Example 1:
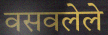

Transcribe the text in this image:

वसवलेले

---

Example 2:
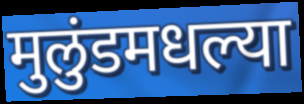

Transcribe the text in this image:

मुलुंडमधल्या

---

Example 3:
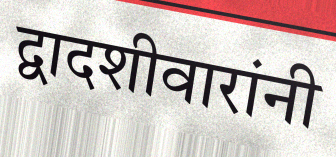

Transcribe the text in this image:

द्वादशीवारांनी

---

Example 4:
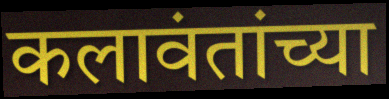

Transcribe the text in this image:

कलावंतांच्या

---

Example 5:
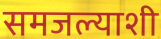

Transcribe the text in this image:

समजल्याशी